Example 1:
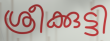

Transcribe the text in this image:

ശ്രീക്കുട്ടി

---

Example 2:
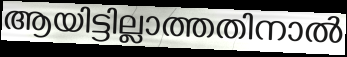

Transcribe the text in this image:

ആയിട്ടില്ലാത്തതിനാൽ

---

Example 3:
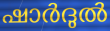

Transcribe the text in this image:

ഷാർദുൽ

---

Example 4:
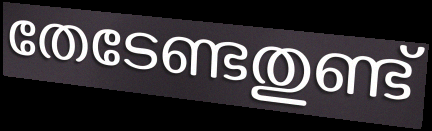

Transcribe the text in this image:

തേടേണ്ടതുണ്ട്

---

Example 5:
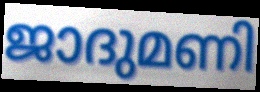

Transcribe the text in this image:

ജാദുമണി